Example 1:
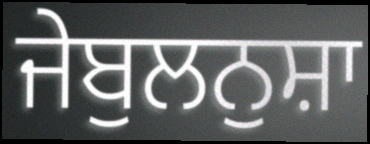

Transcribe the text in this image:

ਜੇਬੁਲਨੁਸ਼ਾ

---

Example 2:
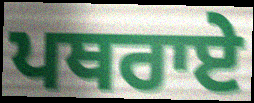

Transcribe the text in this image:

ਪਥਰਾਏ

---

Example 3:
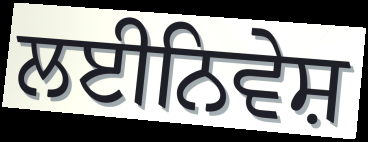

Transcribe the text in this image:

ਲਈਨਿਵੇਸ਼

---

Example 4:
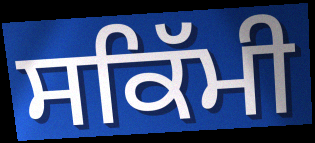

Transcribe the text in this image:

ਸਕਿੱਮੀ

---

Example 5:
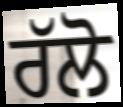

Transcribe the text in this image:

ਰੱਲੋ